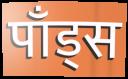
पाँड्स